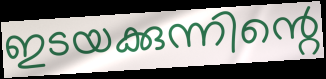
ഇടയക്കുന്നിന്റെ